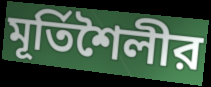
মূর্তিশৈলীর